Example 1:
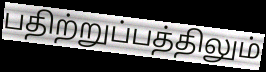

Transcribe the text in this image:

பதிற்றுப்பத்திலும்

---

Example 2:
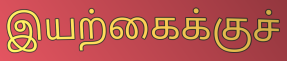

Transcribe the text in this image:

இயற்கைக்குச்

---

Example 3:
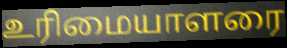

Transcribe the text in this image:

உரிமையாளரை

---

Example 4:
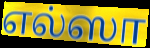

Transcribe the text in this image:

எல்ஸா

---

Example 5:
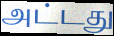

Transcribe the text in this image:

அட்டது